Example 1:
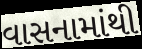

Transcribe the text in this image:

વાસનામાંથી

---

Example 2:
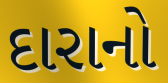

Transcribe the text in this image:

દારાનો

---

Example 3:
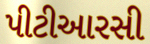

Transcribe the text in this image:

પીટીઆરસી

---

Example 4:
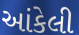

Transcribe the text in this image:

આંકેલી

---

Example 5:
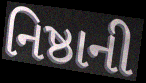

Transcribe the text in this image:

નિષ્ઠાની